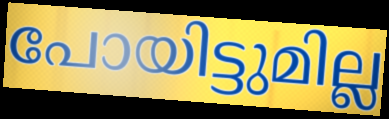
പോയിട്ടുമില്ല